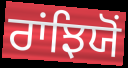
ਰਾਂਝਿਯੋਂ